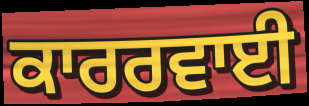
ਕਾਰਰਵਾਈ